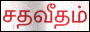
சதவீதம்